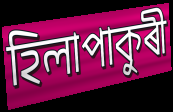
হিলাপাকুৰী